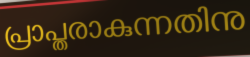
പ്രാപ്തരാകുന്നതിനു